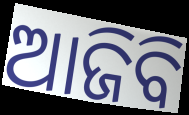
ଆଜିବି